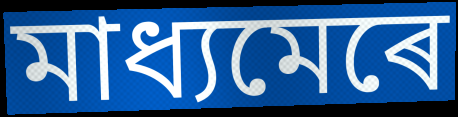
মাধ্যমেৰে